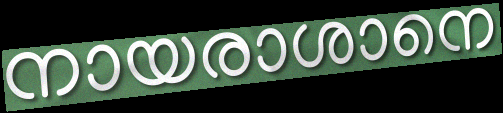
നായരാശാനെ